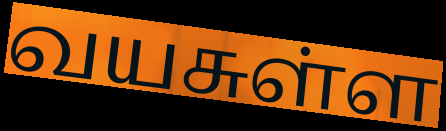
வயசுள்ள